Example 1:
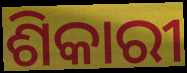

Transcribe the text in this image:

ଶିକାରୀ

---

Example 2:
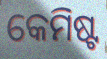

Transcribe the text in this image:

କେମିଷ୍ଟ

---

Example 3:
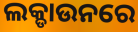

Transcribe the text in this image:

ଲକ୍ଡାଉନରେ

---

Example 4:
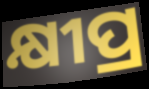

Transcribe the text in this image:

କ୍ଷୀପ୍ର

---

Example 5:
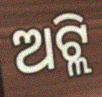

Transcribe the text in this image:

ଅଟ୍ଲି